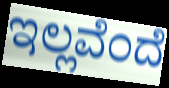
ಇಲ್ಲವೆಂದೆ